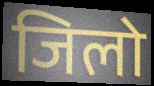
जिलो